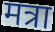
मत्रा